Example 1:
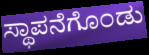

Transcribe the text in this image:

ಸ್ಥಾಪನೆಗೊಂಡು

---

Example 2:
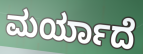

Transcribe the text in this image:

ಮರ್ಯಾದೆ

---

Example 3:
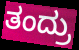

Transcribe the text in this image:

ತಂದ್ರು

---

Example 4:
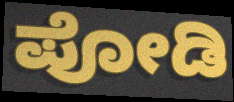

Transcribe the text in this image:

ಪೋಡಿ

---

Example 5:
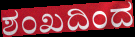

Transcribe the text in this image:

ಶಂಖದಿಂದ